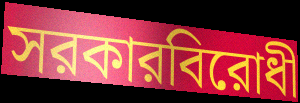
সরকারবিরোধী